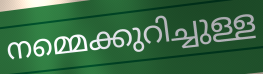
നമ്മെക്കുറിച്ചുള്ള